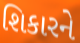
શિકારને